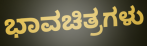
ಭಾವಚಿತ್ರಗಳು